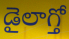
డైలాగ్తో